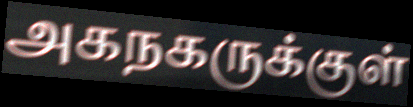
அகநகருக்குள்